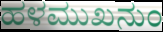
ಹಳಮುಖನುಂ